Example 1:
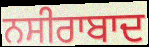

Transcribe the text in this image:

ਨਸੀਰਾਬਾਦ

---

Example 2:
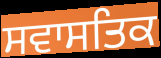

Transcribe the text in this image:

ਸਵਾਸਤਿਕ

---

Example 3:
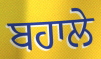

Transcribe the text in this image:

ਬਹਾਲੇ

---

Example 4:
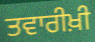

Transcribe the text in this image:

ਤਵਾਰੀਖ਼ੀ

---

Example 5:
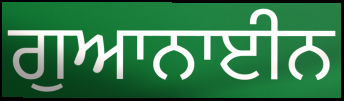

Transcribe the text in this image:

ਗੁਆਨਾਈਨ